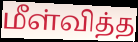
மீள்வித்த